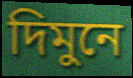
দিমুনে